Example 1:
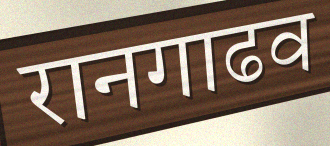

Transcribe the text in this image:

रानगाढव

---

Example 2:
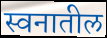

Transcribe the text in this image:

स्वनातील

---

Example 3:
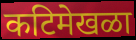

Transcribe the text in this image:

कटिमेखळा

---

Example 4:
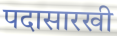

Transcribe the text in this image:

पदासारखी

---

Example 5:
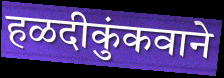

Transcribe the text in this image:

हळदीकुंकवाने